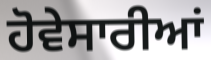
ਹੋਵੇਸਾਰੀਆਂ